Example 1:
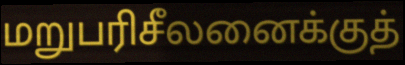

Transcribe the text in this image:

மறுபரிசீலனைக்குத்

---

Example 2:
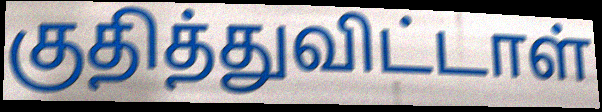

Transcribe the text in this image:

குதித்துவிட்டாள்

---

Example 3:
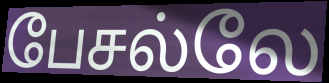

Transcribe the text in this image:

பேசல்லே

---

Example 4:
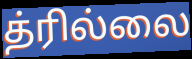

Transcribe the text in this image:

த்ரில்லை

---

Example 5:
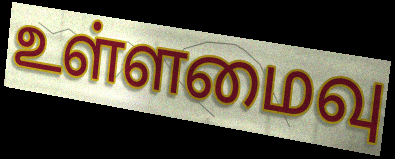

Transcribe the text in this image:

உள்ளமைவு